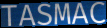
TASMAC